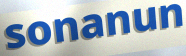
sonanun